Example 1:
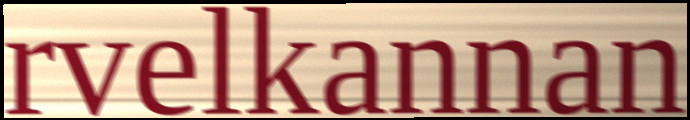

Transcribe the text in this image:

rvelkannan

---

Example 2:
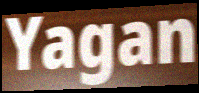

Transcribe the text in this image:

Yagan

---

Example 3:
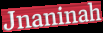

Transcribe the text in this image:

Jnaninah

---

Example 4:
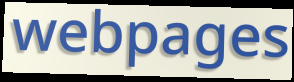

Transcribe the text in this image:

webpages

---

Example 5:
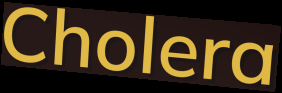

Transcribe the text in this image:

Cholera